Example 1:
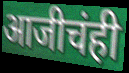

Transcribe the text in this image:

आजीचंही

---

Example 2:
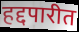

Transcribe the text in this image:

हद्दपारीत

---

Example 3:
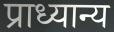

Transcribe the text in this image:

प्राध्यान्य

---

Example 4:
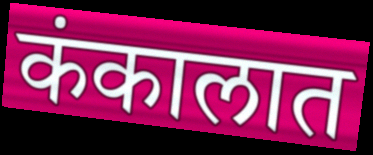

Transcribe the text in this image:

कंकालात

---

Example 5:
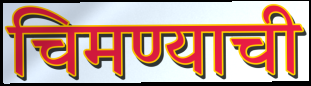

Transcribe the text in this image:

चिमण्याची